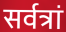
सर्वत्रां